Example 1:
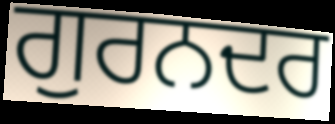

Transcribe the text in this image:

ਗੁਰਨਦਰ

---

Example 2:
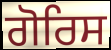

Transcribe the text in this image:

ਗੋਰਿਸ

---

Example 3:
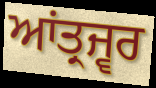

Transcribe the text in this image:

ਆਂਤ੍ਰਜ੍ਵਰ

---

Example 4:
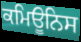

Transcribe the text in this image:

ਕਮਿਊਨਿਸ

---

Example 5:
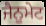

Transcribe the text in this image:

ਜੈਨੂਮੇਟ